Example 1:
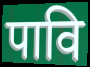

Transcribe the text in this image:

पावि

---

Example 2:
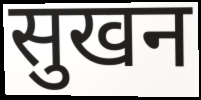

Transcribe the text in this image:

सुखन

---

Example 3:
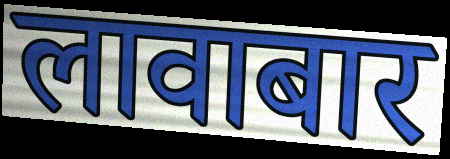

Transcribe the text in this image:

लावाबार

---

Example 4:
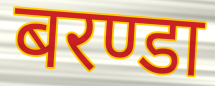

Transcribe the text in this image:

बरण्डा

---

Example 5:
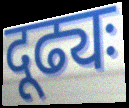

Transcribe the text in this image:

दूढ्यः